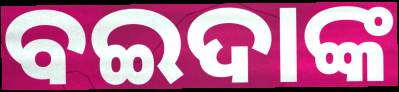
ବଇଦାଙ୍କ